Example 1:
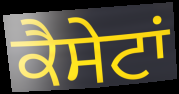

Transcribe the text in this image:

ਕੈਸੇਟਾਂ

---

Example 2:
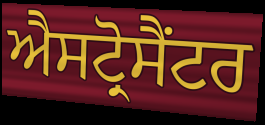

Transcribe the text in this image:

ਐਸਟ੍ਰੋਸੈਂਟਰ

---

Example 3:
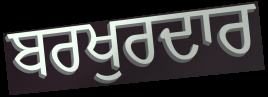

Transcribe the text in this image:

ਬਰਖੁਰਦਾਰ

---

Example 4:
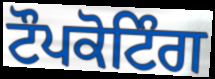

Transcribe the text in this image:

ਟੌਪਕੋਟਿੰਗ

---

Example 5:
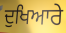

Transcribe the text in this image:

ਦੁਖਿਆਰੇ